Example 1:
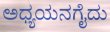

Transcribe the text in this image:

ಅಧ್ಯಯನಗೈದು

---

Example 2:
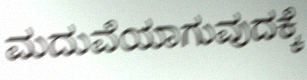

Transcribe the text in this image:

ಮದುವೆಯಾಗುವುದಕ್ಕೆ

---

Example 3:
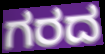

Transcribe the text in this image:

ಗರದ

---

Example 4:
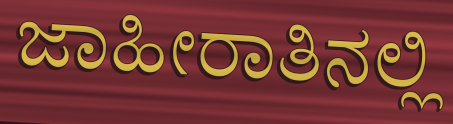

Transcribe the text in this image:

ಜಾಹೀರಾತಿನಲ್ಲಿ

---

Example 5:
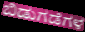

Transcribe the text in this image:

ಬಿಡುಗಡೆಗಳ